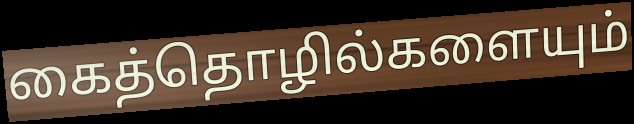
கைத்தொழில்களையும்